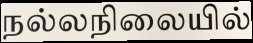
நல்லநிலையில்